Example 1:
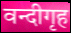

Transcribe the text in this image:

वन्दीगृह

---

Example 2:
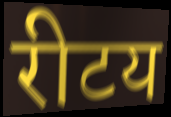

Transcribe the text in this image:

रीटय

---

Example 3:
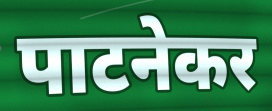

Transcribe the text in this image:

पाटनेकर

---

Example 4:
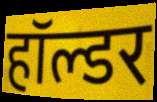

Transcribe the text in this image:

हॉल्डर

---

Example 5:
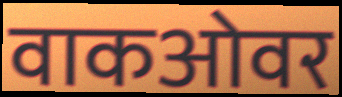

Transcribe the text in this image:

वाकओवर